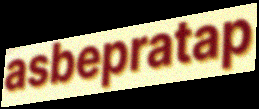
asbepratap